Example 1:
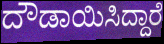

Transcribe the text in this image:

ದೌಡಾಯಿಸಿದ್ದಾರೆ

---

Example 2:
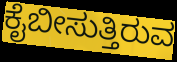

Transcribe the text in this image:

ಕೈಬೀಸುತ್ತಿರುವ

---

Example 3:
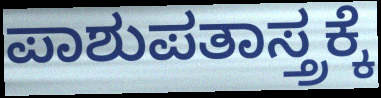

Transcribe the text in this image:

ಪಾಶುಪತಾಸ್ತ್ರಕ್ಕೆ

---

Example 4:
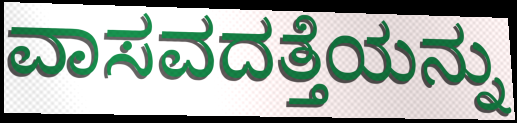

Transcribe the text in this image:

ವಾಸವದತ್ತೆಯನ್ನು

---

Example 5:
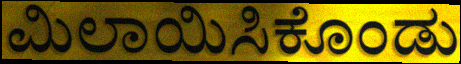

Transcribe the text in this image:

ಮಿಲಾಯಿಸಿಕೊಂಡು